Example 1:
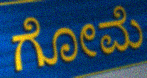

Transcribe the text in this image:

ಗೋಮೆ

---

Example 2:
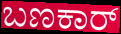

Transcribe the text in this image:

ಬಣಕಾರ್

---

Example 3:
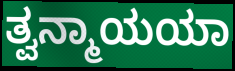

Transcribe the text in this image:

ತ್ವನ್ಮಾಯಯಾ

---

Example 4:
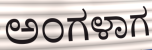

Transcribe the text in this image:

ಅಂಗಳಾಗ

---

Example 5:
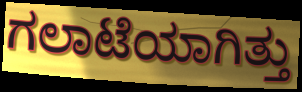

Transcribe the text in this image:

ಗಲಾಟೆಯಾಗಿತ್ತು